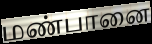
மண்பானை